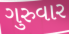
ગુરુવાર